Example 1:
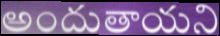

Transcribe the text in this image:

అందుతాయని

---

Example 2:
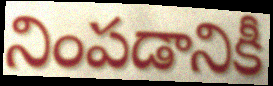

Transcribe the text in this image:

నింపడానికీ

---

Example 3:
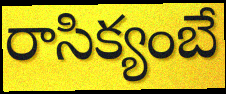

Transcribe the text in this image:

రాసిక్యంబే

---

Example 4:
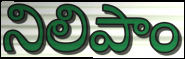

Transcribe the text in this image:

నిలిపాం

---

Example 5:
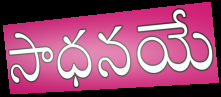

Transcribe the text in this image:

సాధనయే